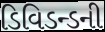
ડિવિડન્ડની